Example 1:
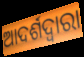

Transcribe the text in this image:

ଆଦର୍ଶଦ୍ୱାରା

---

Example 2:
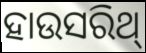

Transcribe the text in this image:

ହାଉସରିଥ୍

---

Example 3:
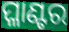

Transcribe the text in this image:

ପ୍ଳାଣ୍ଟର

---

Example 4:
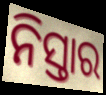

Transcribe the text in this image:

ନିସ୍ତାର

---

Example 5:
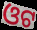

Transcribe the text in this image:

ଓଟ